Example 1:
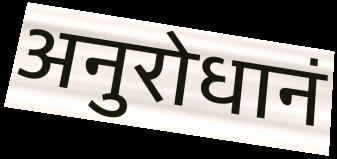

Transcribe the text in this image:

अनुरोधानं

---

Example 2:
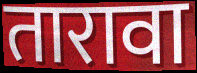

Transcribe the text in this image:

तारावा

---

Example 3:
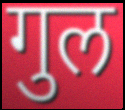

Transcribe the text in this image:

गुल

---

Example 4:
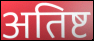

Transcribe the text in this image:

अतिष्ट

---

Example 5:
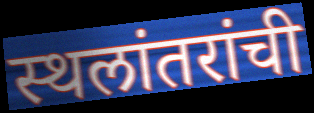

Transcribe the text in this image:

स्थलांतरांची